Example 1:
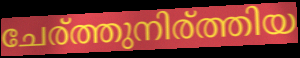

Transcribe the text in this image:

ചേര്ത്തുനിര്ത്തിയ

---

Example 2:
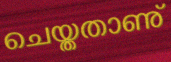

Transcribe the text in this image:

ചെയ്തതാണു്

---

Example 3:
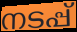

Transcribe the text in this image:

നടപ്പ്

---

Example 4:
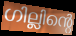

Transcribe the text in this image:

ഗില്ലിന്റെ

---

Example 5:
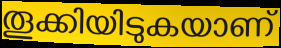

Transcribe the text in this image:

തൂക്കിയിടുകയാണ്